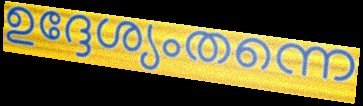
ഉദ്ദേശ്യംതന്നെ